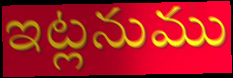
ఇట్లనుము